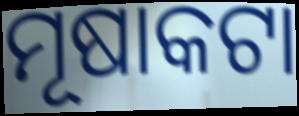
ମୂଷାକଟା